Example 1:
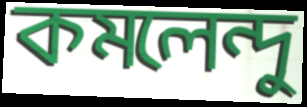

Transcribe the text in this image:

কমলেন্দু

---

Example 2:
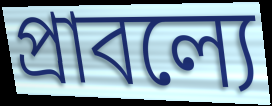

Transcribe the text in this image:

প্রাবল্যে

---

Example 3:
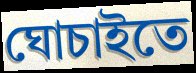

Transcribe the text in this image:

ঘোচাইতে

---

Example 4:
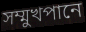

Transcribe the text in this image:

সম্মুখপানে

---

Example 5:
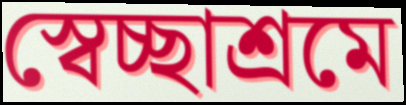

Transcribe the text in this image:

স্বেচ্ছাশ্রমে